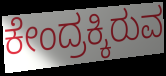
ಕೇಂದ್ರಕ್ಕಿರುವ